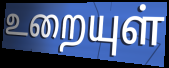
உறையுள்